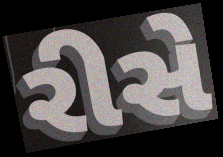
રીસે